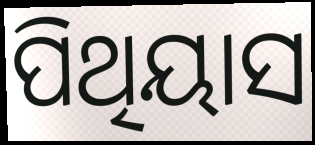
ପିଥିୟାସ